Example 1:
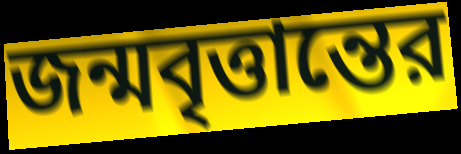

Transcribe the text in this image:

জন্মবৃত্তান্তের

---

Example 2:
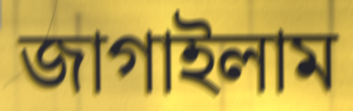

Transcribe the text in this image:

জাগাইলাম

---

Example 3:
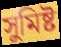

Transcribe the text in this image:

সুমিষ্ট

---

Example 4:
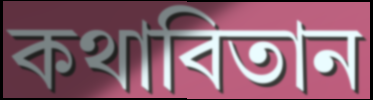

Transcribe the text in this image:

কথাবিতান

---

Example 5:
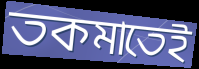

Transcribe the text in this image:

তকমাতেই